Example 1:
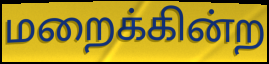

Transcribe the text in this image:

மறைக்கின்ற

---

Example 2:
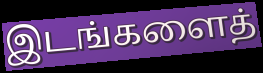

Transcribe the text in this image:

இடங்களைத்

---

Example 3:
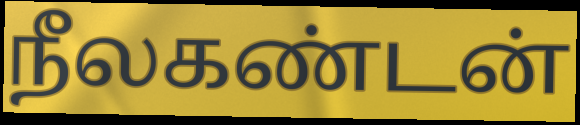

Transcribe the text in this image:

நீலகண்டன்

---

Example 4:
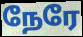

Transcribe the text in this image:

நேரே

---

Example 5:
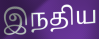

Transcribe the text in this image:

இநதிய